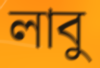
লাবু